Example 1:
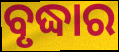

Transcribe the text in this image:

ବୃଦ୍ଧାର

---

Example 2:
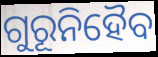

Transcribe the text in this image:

ଗୁରୂନିହୈବ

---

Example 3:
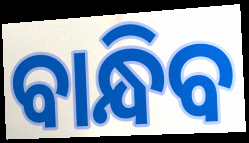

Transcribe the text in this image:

ବାନ୍ଧିବ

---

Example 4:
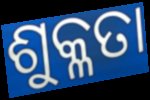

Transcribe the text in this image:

ଶୁକ୍ଳତା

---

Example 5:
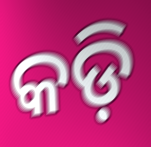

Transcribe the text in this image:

କଡ଼ି